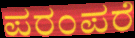
ಪರಂಪರೆ